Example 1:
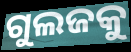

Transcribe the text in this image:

ଗୁଲଜକୁ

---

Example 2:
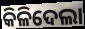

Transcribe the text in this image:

କିଳିଦେଲା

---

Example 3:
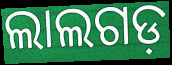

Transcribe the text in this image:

ଲାଲଗଡ଼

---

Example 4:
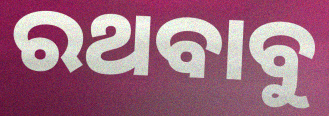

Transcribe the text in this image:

ରଥବାବୁ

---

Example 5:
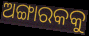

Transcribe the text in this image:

ଅଙ୍ଗାରକକୁ